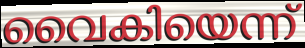
വൈകിയെന്ന്